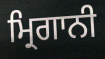
ਮ੍ਰਿਗਾਨੀ